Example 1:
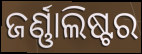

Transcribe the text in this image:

ଜର୍ଣ୍ଣାଲିଷ୍ଟର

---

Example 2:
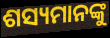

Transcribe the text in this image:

ଶସ୍ୟମାନଙ୍କୁ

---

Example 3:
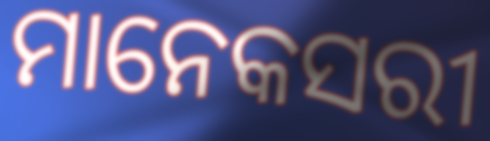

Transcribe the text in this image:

ମାନେକସରୀ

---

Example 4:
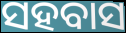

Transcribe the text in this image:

ସହବାସ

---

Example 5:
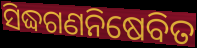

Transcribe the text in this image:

ସିଦ୍ଧଗଣନିଷେବିତ